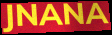
JNANA